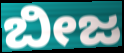
ಬೀಜ